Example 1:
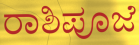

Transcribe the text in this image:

ರಾಶಿಪೂಜೆ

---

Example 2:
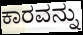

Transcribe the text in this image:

ಕಾರವನ್ನು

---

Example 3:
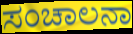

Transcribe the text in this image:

ಸಂಚಾಲನಾ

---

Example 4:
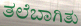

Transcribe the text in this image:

ತಲೆಬಾಗಿತು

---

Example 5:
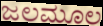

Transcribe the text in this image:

ಜಲಮೂಲ